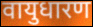
वायुधारण